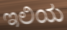
ಇಲಿಯ